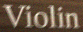
Violin